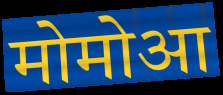
मोमोआ